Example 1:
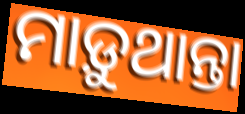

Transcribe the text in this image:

ମାଡ଼ୁଥାନ୍ତା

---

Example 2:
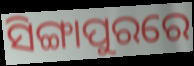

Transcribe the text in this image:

ସିଙ୍ଗାପୁରରେ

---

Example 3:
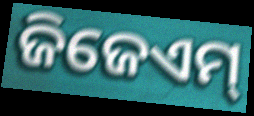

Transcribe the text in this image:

ଜିଜେଏମ୍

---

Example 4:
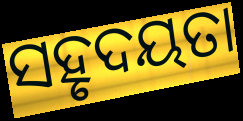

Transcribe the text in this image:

ସହୃଦୟତା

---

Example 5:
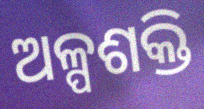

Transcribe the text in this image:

ଅଳ୍ପଶକ୍ତି